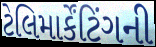
ટેલિમાર્કેંટિંગની